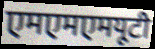
एमएमएमयूटी